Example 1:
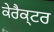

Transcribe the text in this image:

ਕੇਰੈਕ੍ਟਰ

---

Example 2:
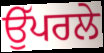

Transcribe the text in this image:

ਉੱਪਰਲੇ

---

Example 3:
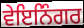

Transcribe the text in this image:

ਵੇਇਨਿੰਗਰ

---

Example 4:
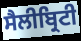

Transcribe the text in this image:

ਸੈਲੀਬ੍ਰਿਟੀ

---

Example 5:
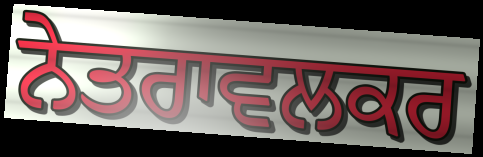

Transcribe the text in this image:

ਨੇਤਰਾਵਲਕਰ